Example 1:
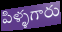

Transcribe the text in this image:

పిళ్ళగారు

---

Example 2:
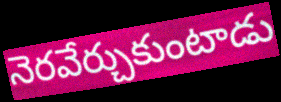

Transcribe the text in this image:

నెరవేర్చుకుంటాడు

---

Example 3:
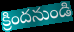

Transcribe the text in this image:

క్రిందనుండి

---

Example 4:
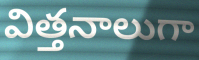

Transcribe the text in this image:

విత్తనాలుగా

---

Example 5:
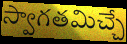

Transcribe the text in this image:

స్వాగతమిచ్చే